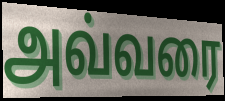
அவ்வரை